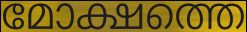
മോക്ഷത്തെ